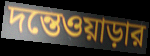
দন্তেওয়াড়ার